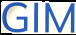
GIM